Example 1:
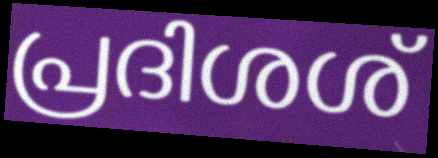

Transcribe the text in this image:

പ്രദിശശ്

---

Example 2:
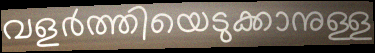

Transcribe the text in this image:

വളർത്തിയെടുക്കാനുള്ള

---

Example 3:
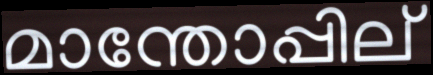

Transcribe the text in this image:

മാന്തോപ്പില്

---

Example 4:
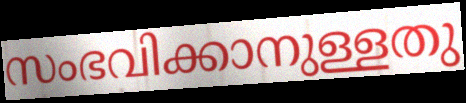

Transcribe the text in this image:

സംഭവിക്കാനുള്ളതു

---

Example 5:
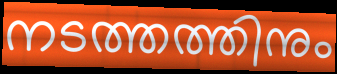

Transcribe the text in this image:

നടത്തത്തിനും